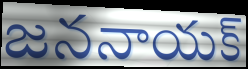
జననాయక్